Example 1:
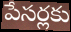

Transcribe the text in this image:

పేసర్లకు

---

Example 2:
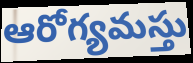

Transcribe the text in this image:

ఆరోగ్యమస్తు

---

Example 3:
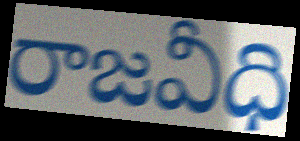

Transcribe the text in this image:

రాజవీధి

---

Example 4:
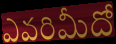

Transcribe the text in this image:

ఎవరిమీదో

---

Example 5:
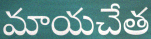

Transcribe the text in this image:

మాయచేత